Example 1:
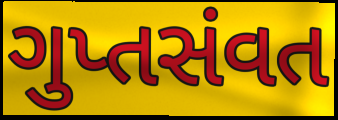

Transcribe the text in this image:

ગુપ્તસંવત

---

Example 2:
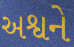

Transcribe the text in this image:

અશ્વને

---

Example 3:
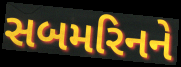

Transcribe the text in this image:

સબમરિનને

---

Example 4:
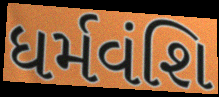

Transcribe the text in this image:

ધર્મવંશિ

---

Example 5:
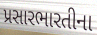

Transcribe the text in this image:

પ્રસારભારતીના